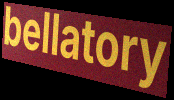
bellatory